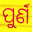
ପୁର୍ଣ